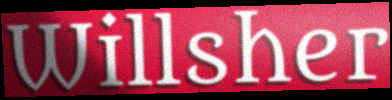
Willsher